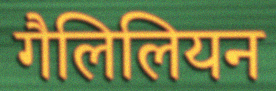
गैलिलियन